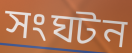
সংঘটন